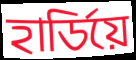
হাৰ্ডিয়ে